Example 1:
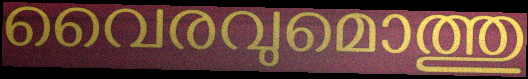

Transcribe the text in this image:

വൈരവുമൊത്തു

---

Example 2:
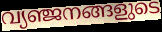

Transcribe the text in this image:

വ്യഞ്ജനങ്ങളുടെ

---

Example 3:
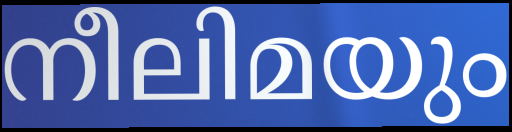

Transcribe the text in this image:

നീലിമയും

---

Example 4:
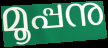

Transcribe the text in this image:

മൂപ്പനു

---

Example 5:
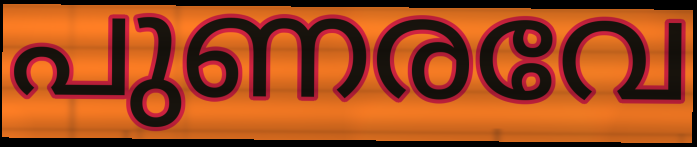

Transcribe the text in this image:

പുണരവേ